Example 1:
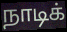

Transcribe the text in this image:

நாடிக்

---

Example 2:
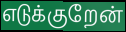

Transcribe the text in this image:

எடுக்குறேன்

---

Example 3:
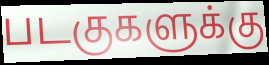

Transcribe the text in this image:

படகுகளுக்கு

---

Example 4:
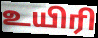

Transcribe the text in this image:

உயிரி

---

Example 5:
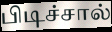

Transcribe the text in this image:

பிடிச்சால்